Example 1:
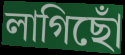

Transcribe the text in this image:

লাগিছোঁ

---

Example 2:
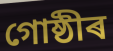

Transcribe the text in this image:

গোষ্ঠীৰ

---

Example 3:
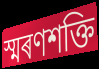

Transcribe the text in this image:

স্মৰণশক্তি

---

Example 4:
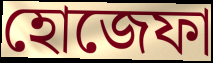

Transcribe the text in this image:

হোজেফা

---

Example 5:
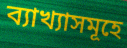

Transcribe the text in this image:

ব্যাখ্যাসমূহে